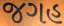
જગહ